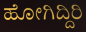
ಹೋಗಿದ್ದಿರಿ